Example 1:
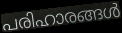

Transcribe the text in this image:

പരിഹാരങ്ങൾ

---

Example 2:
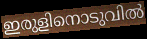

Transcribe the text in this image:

ഇരുളിനൊടുവിൽ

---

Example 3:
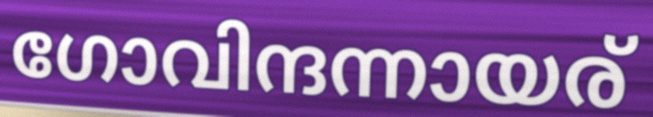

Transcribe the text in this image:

ഗോവിന്ദന്നായര്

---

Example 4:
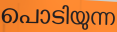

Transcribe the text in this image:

പൊടിയുന്ന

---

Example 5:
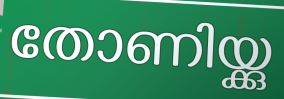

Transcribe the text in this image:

തോണിയ്ക്കു